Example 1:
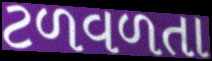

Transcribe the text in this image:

ટળવળતા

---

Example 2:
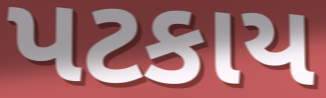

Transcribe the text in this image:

પટકાય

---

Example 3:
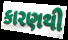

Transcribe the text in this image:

કારણથી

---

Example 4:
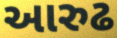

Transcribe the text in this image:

આરુઢ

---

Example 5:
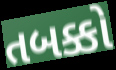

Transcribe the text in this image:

તબક્કો